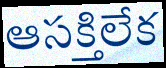
ఆసక్తిలేక